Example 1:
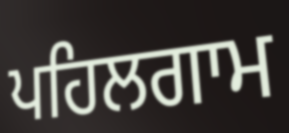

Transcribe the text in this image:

ਪਹਿਲਗਾਮ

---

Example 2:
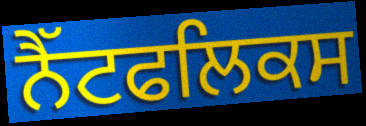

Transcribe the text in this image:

ਨੈੱਟਫਲਿਕਸ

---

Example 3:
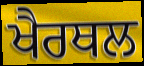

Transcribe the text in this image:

ਖੈਰਥਲ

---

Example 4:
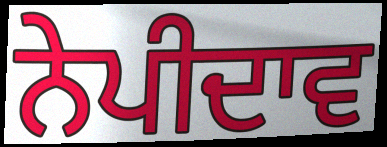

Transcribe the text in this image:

ਨੇਪੀਦਾਵ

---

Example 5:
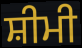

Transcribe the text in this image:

ਸ਼ੀਮੀ